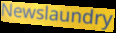
Newslaundry